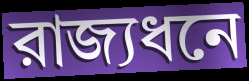
রাজ্যধনে